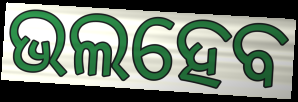
ଭଲହେବ